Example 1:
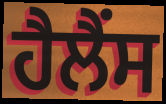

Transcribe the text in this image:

ਹੈਲੈਂਸ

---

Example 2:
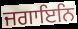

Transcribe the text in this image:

ਜਗਾਇਨਿ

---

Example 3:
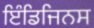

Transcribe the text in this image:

ਇੰਡਿਜਿਨਸ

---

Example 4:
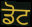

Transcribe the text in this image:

ਡੋਟ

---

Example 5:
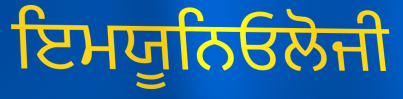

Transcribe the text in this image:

ਇਮਯੂਨਿਓਲੋਜੀ